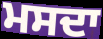
ਮਸਦਾ